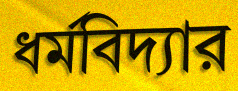
ধর্মবিদ্যার